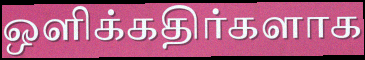
ஒளிக்கதிர்களாக